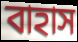
বাহাস